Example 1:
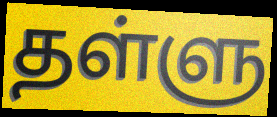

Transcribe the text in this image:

தள்ளு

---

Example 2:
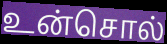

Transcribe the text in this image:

உன்சொல்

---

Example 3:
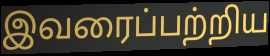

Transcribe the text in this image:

இவரைப்பற்றிய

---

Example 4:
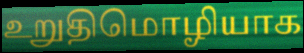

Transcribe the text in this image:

உறுதிமொழியாக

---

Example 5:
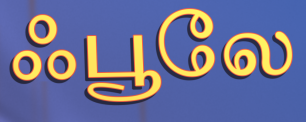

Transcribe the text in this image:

ஃபூலே